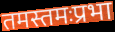
तमस्तमःप्रभा